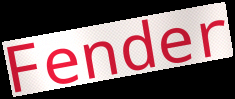
Fender